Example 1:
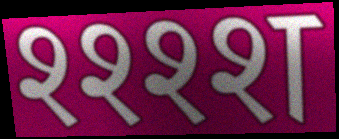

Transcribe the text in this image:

श्श्श्श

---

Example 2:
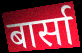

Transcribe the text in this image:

बार्सा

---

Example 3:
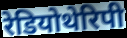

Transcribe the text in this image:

रेडियोथेरिपी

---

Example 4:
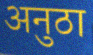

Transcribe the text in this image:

अनुठा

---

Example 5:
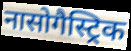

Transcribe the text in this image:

नासोगैस्ट्रिक